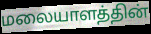
மலையாளத்தின்